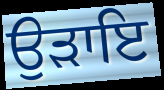
ਉੜਾਇ